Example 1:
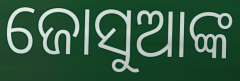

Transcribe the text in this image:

ଜୋସୁଆଙ୍କ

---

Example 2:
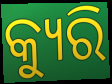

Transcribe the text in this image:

କ୍ୟୁରି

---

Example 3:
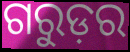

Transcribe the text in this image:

ଗରୁଡ଼ର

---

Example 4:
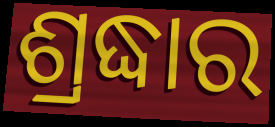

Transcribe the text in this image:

ଶ୍ରଦ୍ଧାର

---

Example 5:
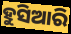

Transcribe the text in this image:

ହୁସିଆରି